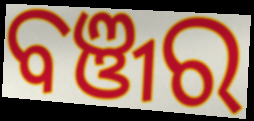
ବଞ୍ଜର